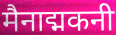
मैनाद्मकनी